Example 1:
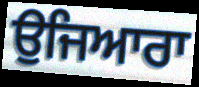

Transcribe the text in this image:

ਉਜਿਆਰਾ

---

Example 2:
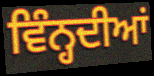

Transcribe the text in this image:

ਵਿੰਨ੍ਹਦੀਆਂ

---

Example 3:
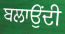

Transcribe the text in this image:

ਬਲਾਉਂਦੀ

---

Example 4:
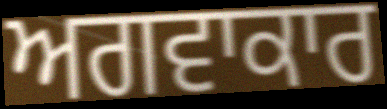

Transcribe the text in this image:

ਅਗਵਾਕਾਰ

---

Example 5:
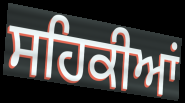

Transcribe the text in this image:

ਸਹਿਕੀਆਂ